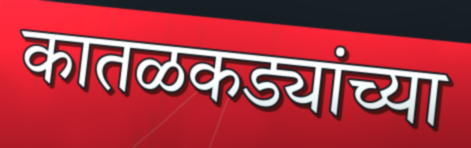
कातळकड्यांच्या